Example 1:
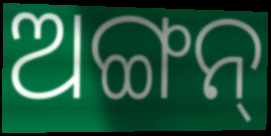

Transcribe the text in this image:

ଅଙ୍ଗନ୍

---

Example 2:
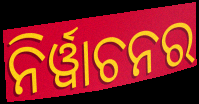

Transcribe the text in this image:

ନିର୍ୱାଚନର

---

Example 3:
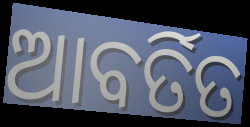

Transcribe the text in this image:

ଆବର୍ତିତ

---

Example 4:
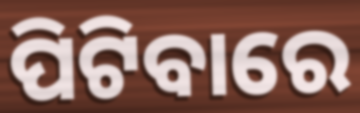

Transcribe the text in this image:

ପିଟିବାରେ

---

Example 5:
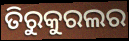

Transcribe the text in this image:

ତିରୁକୁରଲର